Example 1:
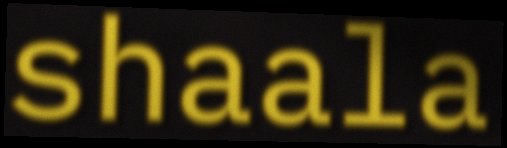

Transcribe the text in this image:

shaala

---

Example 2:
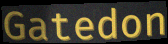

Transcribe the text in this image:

Gatedon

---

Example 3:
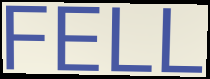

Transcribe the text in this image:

FELL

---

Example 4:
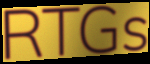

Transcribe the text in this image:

RTGs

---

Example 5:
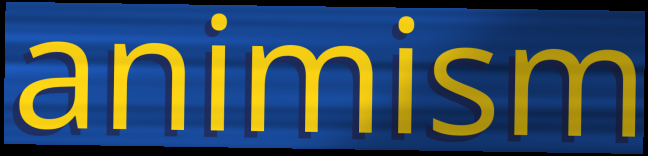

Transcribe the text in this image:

animism